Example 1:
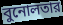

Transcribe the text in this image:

বুনোলতার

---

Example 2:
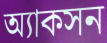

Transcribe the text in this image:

অ্যাকসন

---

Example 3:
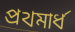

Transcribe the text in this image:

প্রথমার্ধ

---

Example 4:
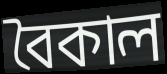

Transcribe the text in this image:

বৈকাল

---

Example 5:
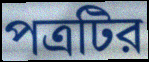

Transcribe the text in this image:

পত্রটির